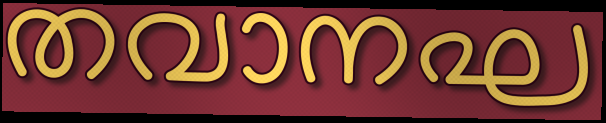
തവാനഘ